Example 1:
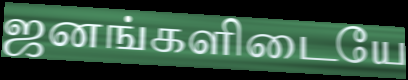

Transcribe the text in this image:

ஜனங்களிடையே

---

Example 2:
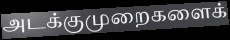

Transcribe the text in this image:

அடக்குமுறைகளைக்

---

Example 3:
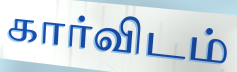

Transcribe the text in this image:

கார்விடம்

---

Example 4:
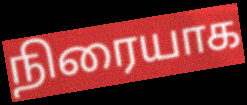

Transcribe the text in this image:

நிரையாக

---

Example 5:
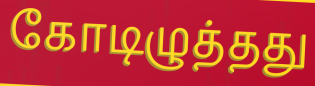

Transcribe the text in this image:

கோடிழுத்தது